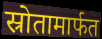
स्रोतामार्फत